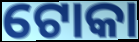
ଟୋକା